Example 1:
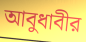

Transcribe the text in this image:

আবুধাবীর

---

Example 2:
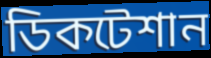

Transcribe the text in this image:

ডিকটেশান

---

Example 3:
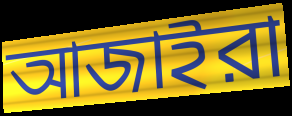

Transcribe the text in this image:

আজাইরা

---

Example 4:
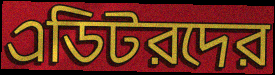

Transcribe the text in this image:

এডিটরদের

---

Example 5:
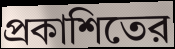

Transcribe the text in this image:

প্রকাশিতের